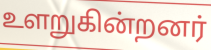
உளறுகின்றனர்